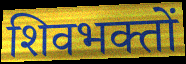
शिवभक्तों